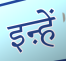
इऩ्हें